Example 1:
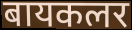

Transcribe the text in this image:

बायकलर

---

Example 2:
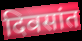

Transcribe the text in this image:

दिवसांत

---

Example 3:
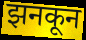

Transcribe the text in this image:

झनकून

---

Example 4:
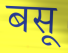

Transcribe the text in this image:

बसू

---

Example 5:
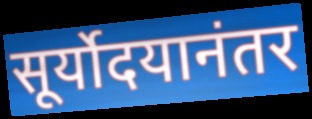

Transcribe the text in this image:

सूर्योदयानंतर